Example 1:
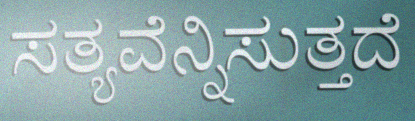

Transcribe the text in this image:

ಸತ್ಯವೆನ್ನಿಸುತ್ತದೆ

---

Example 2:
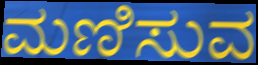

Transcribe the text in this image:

ಮಣಿಸುವ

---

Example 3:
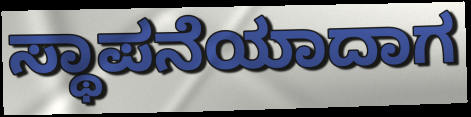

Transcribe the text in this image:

ಸ್ಥಾಪನೆಯಾದಾಗ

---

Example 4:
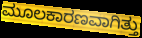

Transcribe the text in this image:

ಮೂಲಕಾರಣವಾಗಿತ್ತು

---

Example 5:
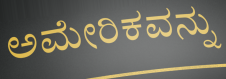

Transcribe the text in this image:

ಅಮೇರಿಕವನ್ನು